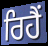
ਰਿਹੈੰ